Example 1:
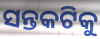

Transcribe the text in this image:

ସନ୍ତକଟିକୁ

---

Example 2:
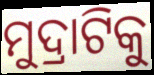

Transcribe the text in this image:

ମୁଦ୍ରାଟିକୁ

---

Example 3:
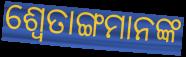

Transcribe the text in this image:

ଶ୍ଵେତାଙ୍ଗମାନଙ୍କ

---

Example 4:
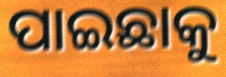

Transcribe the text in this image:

ପାଇଛାକୁ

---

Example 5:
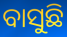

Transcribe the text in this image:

ବାସୁଛି